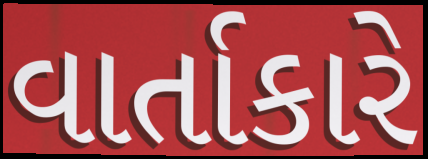
વાર્તાકારે